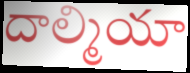
దాల్మియా